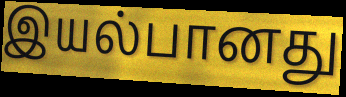
இயல்பானது